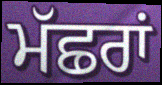
ਮੱਛਰਾਂ